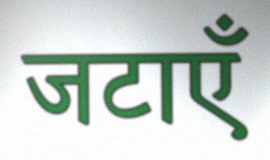
जटाएँ